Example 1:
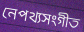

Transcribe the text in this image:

নেপথ্যসংগীত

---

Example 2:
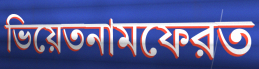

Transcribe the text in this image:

ভিয়েতনামফেরত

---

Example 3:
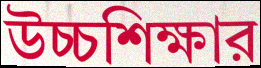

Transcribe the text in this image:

উচ্চশিক্ষার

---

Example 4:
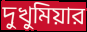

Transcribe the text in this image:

দুখুমিয়ার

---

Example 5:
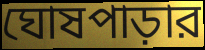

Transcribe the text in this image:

ঘোষপাড়ার